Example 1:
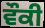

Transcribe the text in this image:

ਵੌਕੀ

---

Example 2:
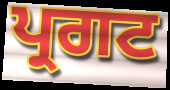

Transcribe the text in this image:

ਪ੍ਰਗਟ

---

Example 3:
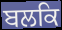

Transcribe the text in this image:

ਬਲਕਿ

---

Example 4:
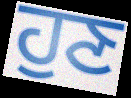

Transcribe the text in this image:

ਹੁਣ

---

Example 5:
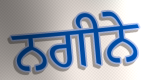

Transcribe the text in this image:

ਨਗੀਨੇ